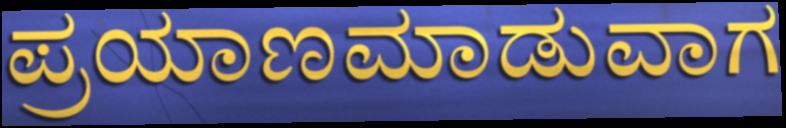
ಪ್ರಯಾಣಮಾಡುವಾಗ